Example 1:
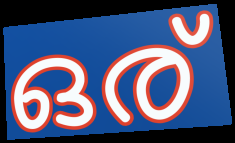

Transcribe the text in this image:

ഒര്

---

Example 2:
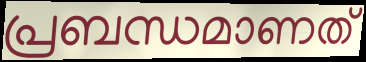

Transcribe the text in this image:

പ്രബന്ധമാണത്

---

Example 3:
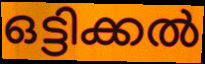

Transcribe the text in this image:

ഒട്ടിക്കൽ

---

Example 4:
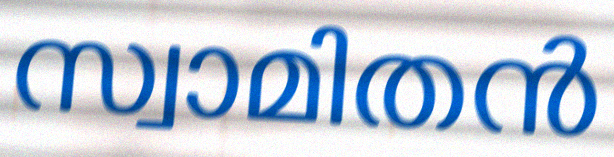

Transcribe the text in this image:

സ്വാമിതൻ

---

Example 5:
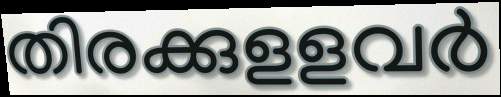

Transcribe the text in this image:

തിരക്കുളളവർ